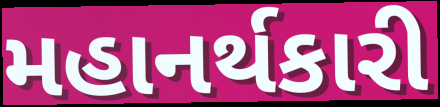
મહાનર્થકારી